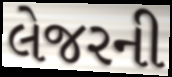
લેજરની